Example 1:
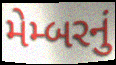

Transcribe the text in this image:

મેમ્બરનું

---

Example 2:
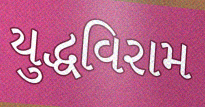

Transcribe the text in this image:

યુદ્ધવિરામ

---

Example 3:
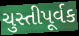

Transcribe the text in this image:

ચુસ્તીપૂર્વક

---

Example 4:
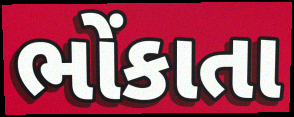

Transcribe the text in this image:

ભોંકાતા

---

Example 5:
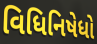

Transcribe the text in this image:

વિધિનિષેધો